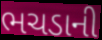
ભચડાની